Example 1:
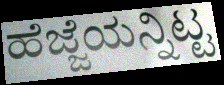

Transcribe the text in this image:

ಹೆಜ್ಜೆಯನ್ನಿಟ್ಟ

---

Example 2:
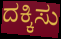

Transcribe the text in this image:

ದಕ್ಕಿಸು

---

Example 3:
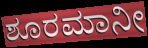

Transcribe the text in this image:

ಶೂರಮಾನೀ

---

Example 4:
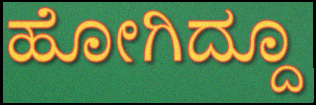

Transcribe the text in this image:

ಹೋಗಿದ್ದೂ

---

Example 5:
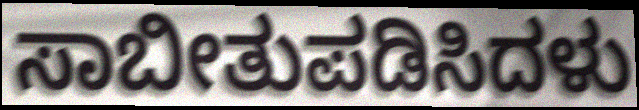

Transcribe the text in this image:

ಸಾಬೀತುಪಡಿಸಿದಳು